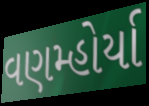
વણમ્હોર્યા